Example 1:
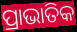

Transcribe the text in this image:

ପ୍ରାଭାତିକ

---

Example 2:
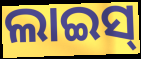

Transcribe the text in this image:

ଲାଇସ୍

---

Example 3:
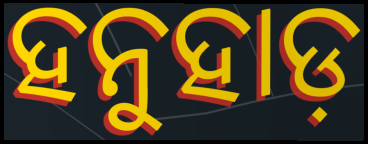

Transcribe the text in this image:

ହନୁହାଡ଼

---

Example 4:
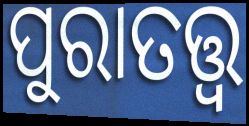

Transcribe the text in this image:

ପୁରାତତ୍ତ୍ୱ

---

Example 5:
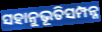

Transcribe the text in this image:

ସହାନୁଭୂତିସମ୍ପନ୍ନ